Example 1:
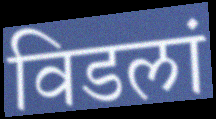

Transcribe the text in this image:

विडलां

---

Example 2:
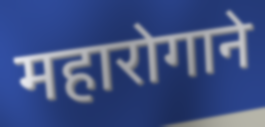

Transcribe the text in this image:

महारोगाने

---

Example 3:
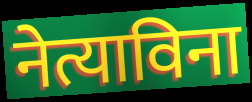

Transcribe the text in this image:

नेत्याविना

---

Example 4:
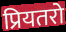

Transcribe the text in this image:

प्रियतरो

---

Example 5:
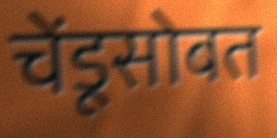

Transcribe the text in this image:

चेंडूसोबत